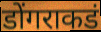
डोंगराकडं